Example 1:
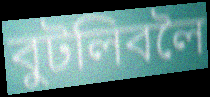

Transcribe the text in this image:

বুটলিবলৈ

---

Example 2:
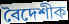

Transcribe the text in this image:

বৈদেশীক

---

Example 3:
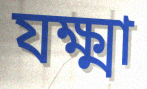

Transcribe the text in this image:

যক্ষ্মা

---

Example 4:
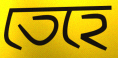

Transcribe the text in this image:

তেহে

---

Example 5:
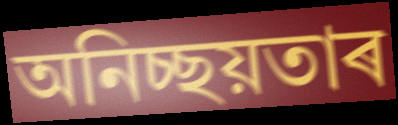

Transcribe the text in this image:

অনিচ্ছয়তাৰ